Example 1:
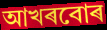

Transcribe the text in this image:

আখৰবোৰ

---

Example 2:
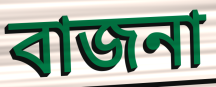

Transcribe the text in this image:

বাজনা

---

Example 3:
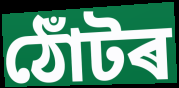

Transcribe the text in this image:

ঠোঁটৰ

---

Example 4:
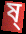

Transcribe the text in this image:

ষ্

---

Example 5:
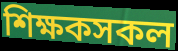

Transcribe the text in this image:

শিক্ষকসকল